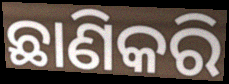
ଛାଣିକରି